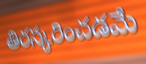
తిరస్కరించడమే